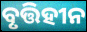
ବୃତ୍ତିହୀନ